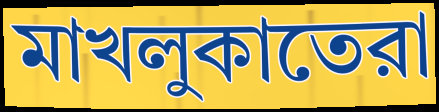
মাখলুকাতেরা